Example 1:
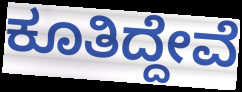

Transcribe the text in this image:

ಕೂತಿದ್ದೇವೆ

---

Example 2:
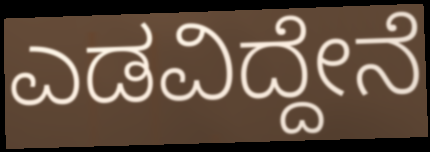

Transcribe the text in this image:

ಎಡವಿದ್ದೇನೆ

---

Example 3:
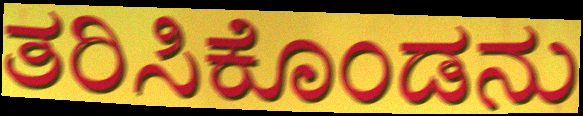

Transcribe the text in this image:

ತರಿಸಿಕೊಂಡನು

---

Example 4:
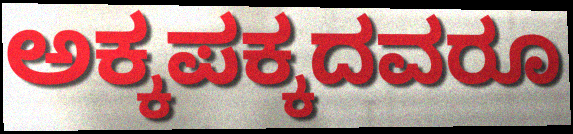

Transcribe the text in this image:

ಅಕ್ಕಪಕ್ಕದವರೂ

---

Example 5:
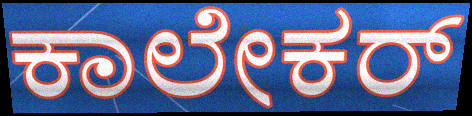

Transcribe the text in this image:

ಕಾಲೇಕರ್